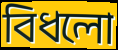
বিধলো